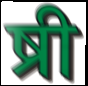
ष्री